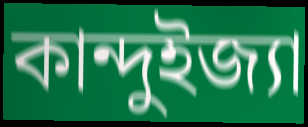
কান্দুইজ্যা